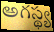
అగస్థ్య